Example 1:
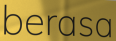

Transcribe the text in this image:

berasa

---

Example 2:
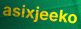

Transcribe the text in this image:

asixjeeko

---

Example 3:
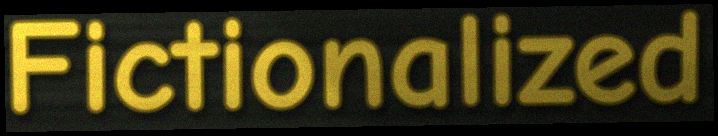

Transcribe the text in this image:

Fictionalized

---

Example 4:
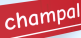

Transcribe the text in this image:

champal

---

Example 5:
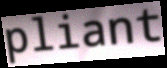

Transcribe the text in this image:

pliant